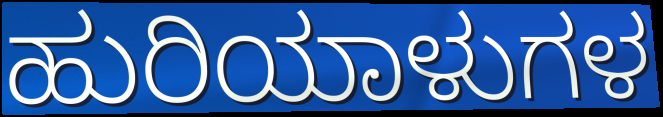
ಹುರಿಯಾಳುಗಳ